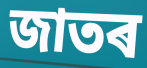
জাতৰ